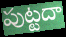
పుట్టదా